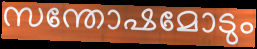
സന്തോഷമോടും